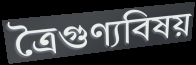
ত্রৈগুণ্যবিষয়